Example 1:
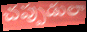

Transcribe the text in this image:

చప్పుడులా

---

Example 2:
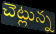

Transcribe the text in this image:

చెట్లున్న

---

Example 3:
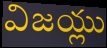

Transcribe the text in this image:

విజయ్లు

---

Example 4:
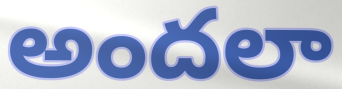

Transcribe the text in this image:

అందలా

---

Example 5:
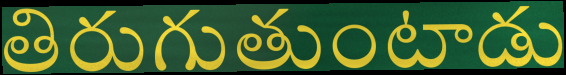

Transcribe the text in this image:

తిరుగుతుంటాడు